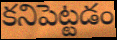
కనిపెట్టడం